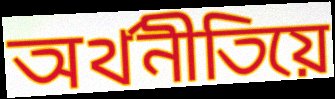
অৰ্থনীতিয়ে